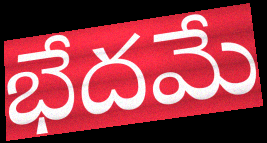
భేదమే